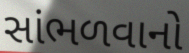
સાંભળવાનો